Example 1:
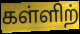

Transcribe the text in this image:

கள்ளிற்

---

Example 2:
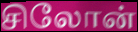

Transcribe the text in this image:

சிலோன்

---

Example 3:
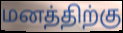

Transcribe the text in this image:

மனத்திற்கு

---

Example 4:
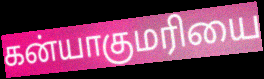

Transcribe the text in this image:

கன்யாகுமரியை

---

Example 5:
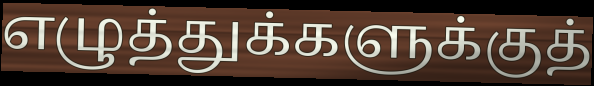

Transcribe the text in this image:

எழுத்துக்களுக்குத்